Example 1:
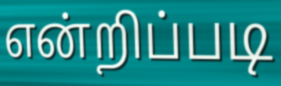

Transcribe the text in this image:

என்றிப்படி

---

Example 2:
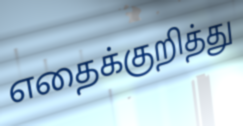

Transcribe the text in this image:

எதைக்குறித்து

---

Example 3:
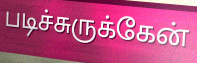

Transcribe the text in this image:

படிச்சுருக்கேன்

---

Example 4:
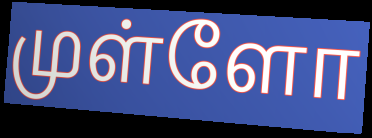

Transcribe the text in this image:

முள்ளோ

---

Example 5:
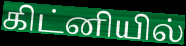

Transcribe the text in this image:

கிட்னியில்